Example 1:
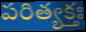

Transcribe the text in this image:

పరిత్యక్తః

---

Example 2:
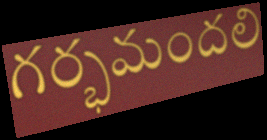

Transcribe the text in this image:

గర్భమందలి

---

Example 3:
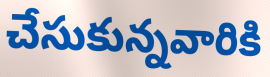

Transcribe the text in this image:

చేసుకున్నవారికి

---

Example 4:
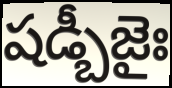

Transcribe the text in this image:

షడ్బీజైః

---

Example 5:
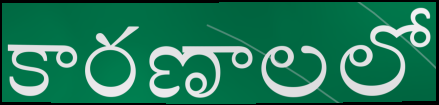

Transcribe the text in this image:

కారణాలలో